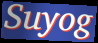
Suyog